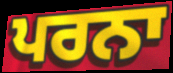
ਪਰਨਾ